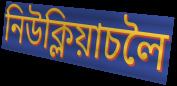
নিউক্লিয়াচলৈ